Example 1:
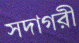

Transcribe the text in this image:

সদাগরী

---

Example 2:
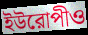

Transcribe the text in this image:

ইউরোপীও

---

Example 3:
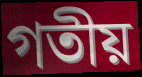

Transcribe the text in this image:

গতীয়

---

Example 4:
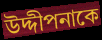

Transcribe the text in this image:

উদ্দীপনাকে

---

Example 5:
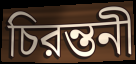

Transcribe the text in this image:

চিরন্তনী